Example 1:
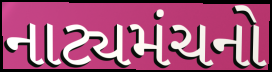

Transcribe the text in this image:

નાટ્યમંચનો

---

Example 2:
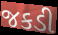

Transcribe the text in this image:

જકડી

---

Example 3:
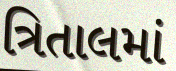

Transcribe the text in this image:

ત્રિતાલમાં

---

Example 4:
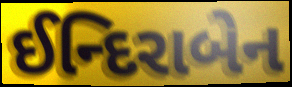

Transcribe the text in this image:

ઈન્દિરાબેન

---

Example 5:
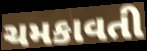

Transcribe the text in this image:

ચમકાવતી